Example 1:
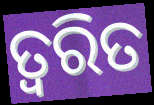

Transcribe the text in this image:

ତ୍ବରିତ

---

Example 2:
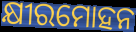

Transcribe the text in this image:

କ୍ଷୀରମୋହନ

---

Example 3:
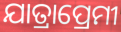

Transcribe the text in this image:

ଯାତ୍ରାପ୍ରେମୀ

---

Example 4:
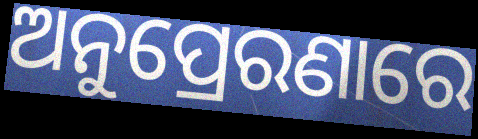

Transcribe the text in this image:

ଅନୁପ୍ରେରଣାରେ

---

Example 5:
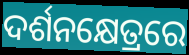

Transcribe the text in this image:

ଦର୍ଶନକ୍ଷେତ୍ରରେ